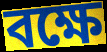
বক্ষে